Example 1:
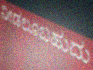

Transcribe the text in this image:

ನೀಡಲೂಬಹುದು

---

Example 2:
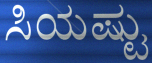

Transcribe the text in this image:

ಸಿಯಷ್ಟು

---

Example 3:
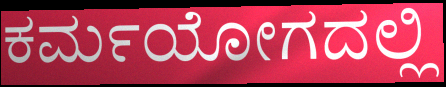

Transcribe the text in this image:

ಕರ್ಮಯೋಗದಲ್ಲಿ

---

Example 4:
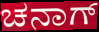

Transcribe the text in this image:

ಚನಾಗ್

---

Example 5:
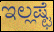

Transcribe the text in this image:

ಇಲ್ಲಷ್ಟೆ